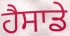
ਹੈਸਾਡੇ